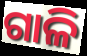
ଗାଳି